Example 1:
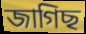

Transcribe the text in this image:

জাগিছ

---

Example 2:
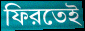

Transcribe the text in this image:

ফিরতেই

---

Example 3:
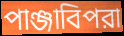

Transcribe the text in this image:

পাঞ্জাবিপরা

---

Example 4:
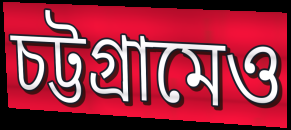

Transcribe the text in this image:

চট্টগ্রামেও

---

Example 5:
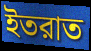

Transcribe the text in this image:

ইতরাত